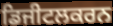
ਡਿਜੀਟਲਕਰਨ